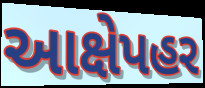
આક્ષેપહર